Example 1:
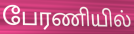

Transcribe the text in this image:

பேரணியில்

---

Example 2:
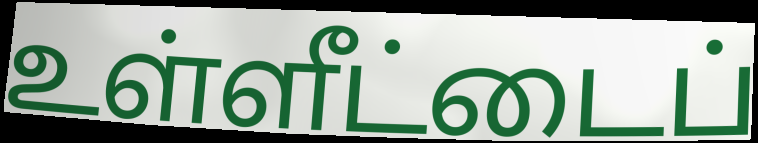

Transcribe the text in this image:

உள்ளீட்டைப்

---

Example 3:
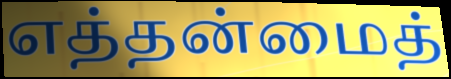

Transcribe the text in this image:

எத்தன்மைத்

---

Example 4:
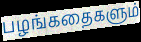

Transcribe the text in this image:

பழங்கதைகளும்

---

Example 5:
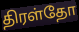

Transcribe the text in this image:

திரள்தோ